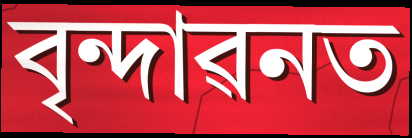
বৃন্দাৱনত